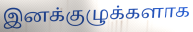
இனக்குழுக்களாக